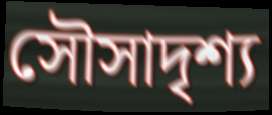
সৌসাদৃশ্য